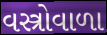
વસ્ત્રોવાળા